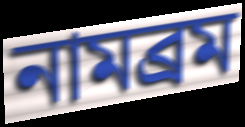
নামব্রম